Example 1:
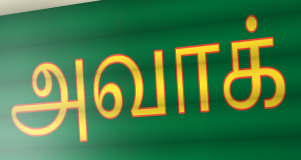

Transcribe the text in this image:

அவாக்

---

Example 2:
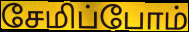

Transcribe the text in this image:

சேமிப்போம்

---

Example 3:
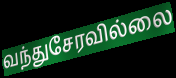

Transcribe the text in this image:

வந்துசேரவில்லை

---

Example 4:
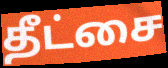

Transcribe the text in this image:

தீட்சை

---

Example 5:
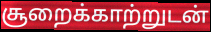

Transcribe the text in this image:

சூறைக்காற்றுடன்